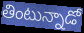
తింటున్నాడో